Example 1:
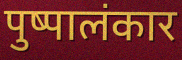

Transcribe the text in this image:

पुष्पालंकार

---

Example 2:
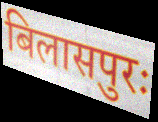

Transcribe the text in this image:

बिलासपुरः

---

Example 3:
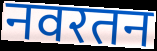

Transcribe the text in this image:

नवरतन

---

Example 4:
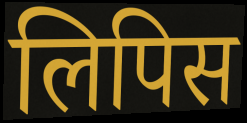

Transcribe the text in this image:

लिपिस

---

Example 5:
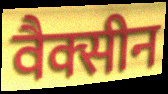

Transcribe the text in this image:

वैक्‍सीन